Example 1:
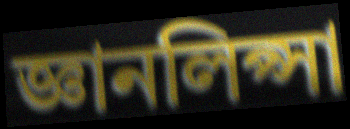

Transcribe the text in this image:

জ্ঞানলিপ্সা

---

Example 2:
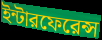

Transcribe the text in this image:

ইন্টারফেরেন্স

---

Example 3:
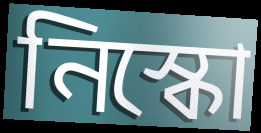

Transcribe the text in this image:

নিস্কো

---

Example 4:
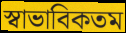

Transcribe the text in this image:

স্বাভাবিকতম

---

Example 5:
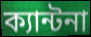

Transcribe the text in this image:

ক্যান্টনা